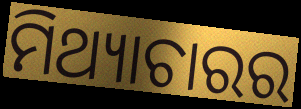
ମିଥ୍ୟାଚାରର